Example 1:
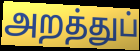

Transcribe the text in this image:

அறத்துப்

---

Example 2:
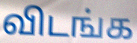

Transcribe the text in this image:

விடங்க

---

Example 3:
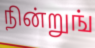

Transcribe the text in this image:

நின்றுங்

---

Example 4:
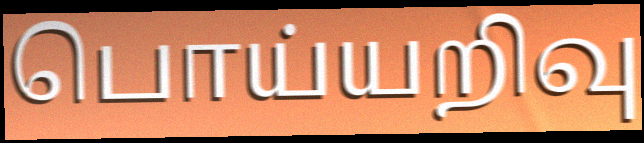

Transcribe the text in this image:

பொய்யறிவு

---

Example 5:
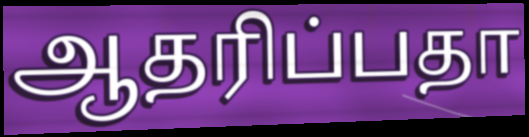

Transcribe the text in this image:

ஆதரிப்பதா